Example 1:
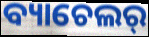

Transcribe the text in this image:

ବ୍ୟାଚେଲର୍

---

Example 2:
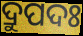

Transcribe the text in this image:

ଦ୍ରୁପଦଃ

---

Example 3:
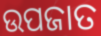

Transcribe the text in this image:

ଉପଜାତ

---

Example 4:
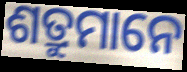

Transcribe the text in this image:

ଶତ୍ରୁମାନେ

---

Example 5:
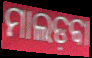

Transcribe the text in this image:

ମାଲଡ଼ବା